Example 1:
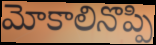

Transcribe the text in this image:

మోకాలినొప్పి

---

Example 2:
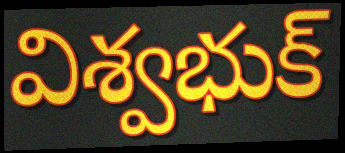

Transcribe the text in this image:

విశ్వభుక్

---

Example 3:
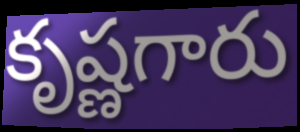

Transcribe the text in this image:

కృష్ణగారు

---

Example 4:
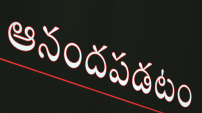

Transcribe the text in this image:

ఆనందపడటం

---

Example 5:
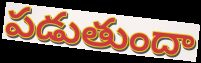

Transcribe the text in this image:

పడుతుందా